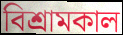
বিশ্রামকাল